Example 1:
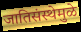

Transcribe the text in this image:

जातिसंस्थेमुळे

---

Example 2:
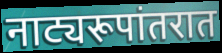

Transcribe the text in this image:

नाट्यरूपांतरात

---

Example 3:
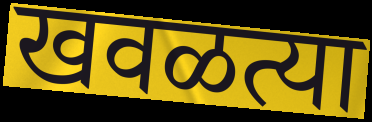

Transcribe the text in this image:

खवळत्या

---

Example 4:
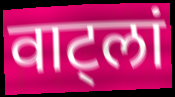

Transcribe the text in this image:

वाट्लां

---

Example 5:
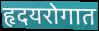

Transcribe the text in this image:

हृदयरोगात